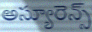
అస్యూరెన్స్